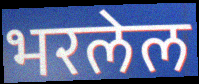
भरलेल